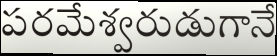
పరమేశ్వరుడుగానే